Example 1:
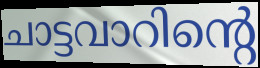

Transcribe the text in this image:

ചാട്ടവാറിന്റെ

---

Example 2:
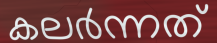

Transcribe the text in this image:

കലർന്നത്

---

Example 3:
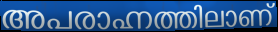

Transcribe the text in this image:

അപരാഹ്നത്തിലാണ്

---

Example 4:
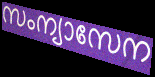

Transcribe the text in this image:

സംന്യാസേന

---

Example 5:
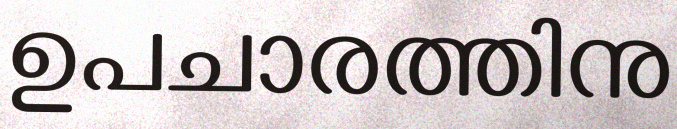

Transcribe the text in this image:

ഉപചാരത്തിനു